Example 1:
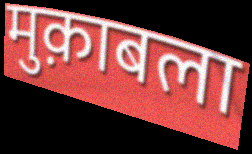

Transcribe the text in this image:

मुक़ाबला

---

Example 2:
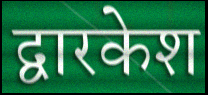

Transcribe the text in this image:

द्वारकेश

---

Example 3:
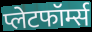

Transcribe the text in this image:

प्लेटफॉर्म्स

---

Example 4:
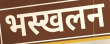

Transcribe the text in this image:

भस्खलन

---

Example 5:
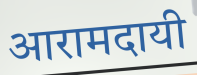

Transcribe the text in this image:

आरामदायी